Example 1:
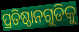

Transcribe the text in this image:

ପ୍ରତିଷ୍ଠାନଗୁଡିକୁ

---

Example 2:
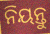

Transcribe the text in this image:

ନିୟନ୍ତୁ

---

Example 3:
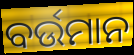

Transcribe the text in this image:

ବର୍ଉମାନ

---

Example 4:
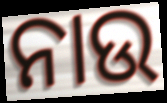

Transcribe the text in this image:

ନାଉ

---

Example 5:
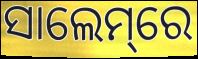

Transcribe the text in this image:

ସାଲେମ୍‌ରେ